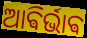
ଆଵିର୍ଭାଵ